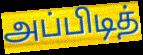
அப்பிடித்